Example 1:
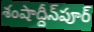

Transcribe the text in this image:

శంషాద్దీన్‌పూర్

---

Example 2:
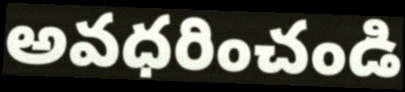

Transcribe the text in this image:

అవధరించండి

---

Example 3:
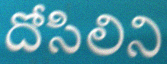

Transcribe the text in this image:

దోసిలిని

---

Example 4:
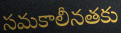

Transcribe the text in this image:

సమకాలీనతకు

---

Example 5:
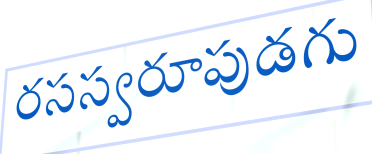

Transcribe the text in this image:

రసస్వరూపుడగు